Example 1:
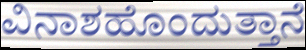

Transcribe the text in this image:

ವಿನಾಶಹೊಂದುತ್ತಾನೆ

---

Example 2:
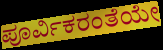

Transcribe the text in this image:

ಪೂರ್ವಿಕರಂತೆಯೇ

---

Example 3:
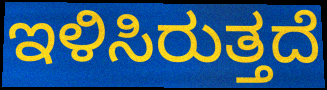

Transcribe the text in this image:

ಇಳಿಸಿರುತ್ತದೆ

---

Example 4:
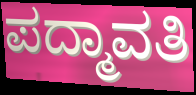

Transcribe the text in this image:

ಪದ್ಮಾವತಿ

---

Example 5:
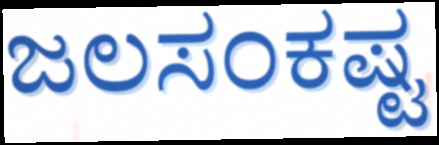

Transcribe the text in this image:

ಜಲಸಂಕಷ್ಟ